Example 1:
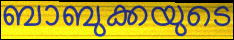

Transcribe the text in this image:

ബാബുക്കയുടെ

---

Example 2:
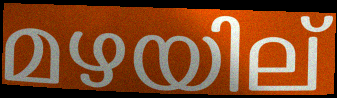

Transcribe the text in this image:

മഴയില്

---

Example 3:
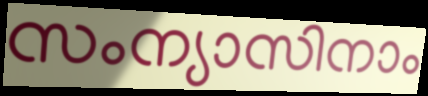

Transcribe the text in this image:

സംന്യാസിനാം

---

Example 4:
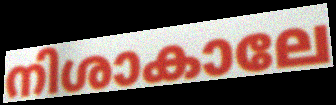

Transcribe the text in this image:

നിശാകാലേ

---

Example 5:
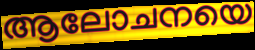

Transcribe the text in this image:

ആലോചനയെ